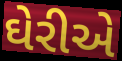
ઘેરીએ